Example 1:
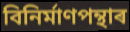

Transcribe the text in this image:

বিনিৰ্মাণপন্থাৰ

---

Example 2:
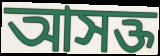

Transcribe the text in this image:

আসক্ত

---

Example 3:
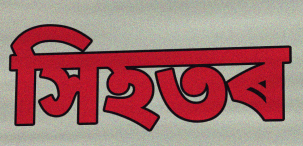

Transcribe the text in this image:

সিহতৰ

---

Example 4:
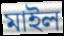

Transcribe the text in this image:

মাইল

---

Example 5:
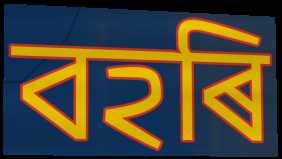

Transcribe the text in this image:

বহৰি